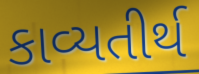
કાવ્યતીર્થ